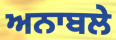
ਅਨਾਬਲੇ